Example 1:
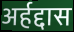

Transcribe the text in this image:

अर्हद्दास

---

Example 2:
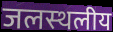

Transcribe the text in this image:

जलस्थलीय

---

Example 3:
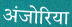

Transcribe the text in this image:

अंजोरिया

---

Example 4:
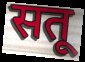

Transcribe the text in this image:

सतू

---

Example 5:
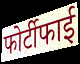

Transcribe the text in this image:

फोर्टीफाई